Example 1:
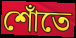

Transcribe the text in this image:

শোঁতে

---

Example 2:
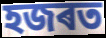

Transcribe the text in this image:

হজৰত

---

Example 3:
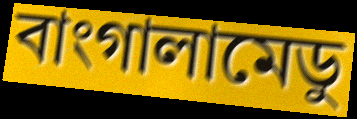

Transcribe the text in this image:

বাংগালামেডু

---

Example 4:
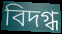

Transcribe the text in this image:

বিদগ্ধ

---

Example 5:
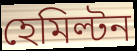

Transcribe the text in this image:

হেমিল্টন